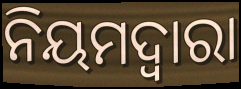
ନିୟମଦ୍ଵାରା